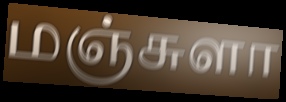
மஞ்சுளா